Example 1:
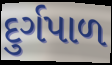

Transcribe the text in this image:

દુર્ગપાળ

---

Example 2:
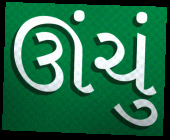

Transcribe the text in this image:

ઊંચું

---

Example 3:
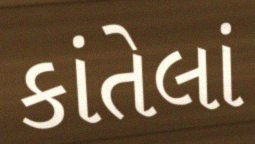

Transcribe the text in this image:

કાંતેલાં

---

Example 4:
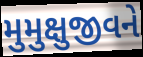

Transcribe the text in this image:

મુમુક્ષુજીવને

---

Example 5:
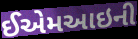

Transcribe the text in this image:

ઈએમઆઇની